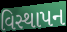
વિસ્થાપન